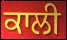
ਕਾਲੀ